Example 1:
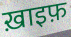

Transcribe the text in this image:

ख़ाइफ़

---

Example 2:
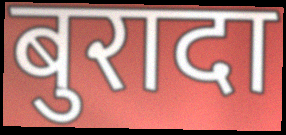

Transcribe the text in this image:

बुरादा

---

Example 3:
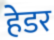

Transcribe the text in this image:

हेडर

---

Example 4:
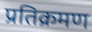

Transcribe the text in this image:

प्रतिक्रमण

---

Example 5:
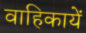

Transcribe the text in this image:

वाहिकायें